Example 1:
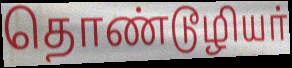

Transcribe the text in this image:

தொண்டூழியர்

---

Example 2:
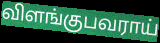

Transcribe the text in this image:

விளங்குபவராய்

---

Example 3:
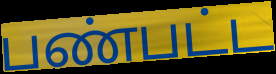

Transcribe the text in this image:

பண்பட்ட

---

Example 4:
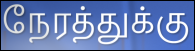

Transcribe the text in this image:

நேரத்துக்கு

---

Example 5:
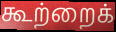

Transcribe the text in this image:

கூற்றைக்